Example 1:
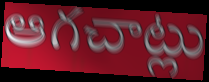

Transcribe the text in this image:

ఆగచాట్లు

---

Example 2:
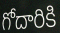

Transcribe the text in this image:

గోదారికి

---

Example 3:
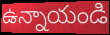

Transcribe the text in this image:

ఉన్నాయండి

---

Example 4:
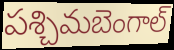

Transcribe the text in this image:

పశ్చిమబెంగాల్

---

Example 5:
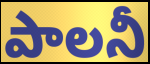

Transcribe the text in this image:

పాలనీ